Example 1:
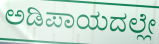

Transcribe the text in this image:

ಅಡಿಪಾಯದಲ್ಲೇ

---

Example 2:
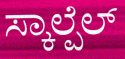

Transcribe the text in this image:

ಸ್ಕಾಲ್ಪೆಲ್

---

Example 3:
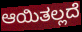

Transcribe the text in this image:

ಆಯಿತಲ್ಲದೆ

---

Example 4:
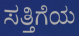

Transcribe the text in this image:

ಸತ್ತಿಗೆಯ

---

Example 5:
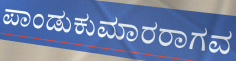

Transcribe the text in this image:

ಪಾಂಡುಕುಮಾರರಾಗವ